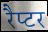
रैप्टर